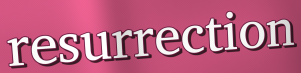
resurrection